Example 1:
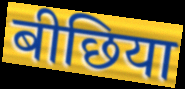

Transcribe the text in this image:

बीछिया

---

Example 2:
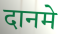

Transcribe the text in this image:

दानमे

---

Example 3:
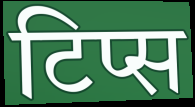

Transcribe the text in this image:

टिप्‍स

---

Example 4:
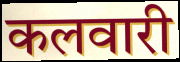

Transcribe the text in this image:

कलवारी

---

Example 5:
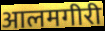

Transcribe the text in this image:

आलमगीरी